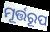
ମୂର୍ତ୍ତରୂପ